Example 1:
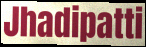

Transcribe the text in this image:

Jhadipatti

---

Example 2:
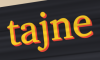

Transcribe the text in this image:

tajne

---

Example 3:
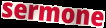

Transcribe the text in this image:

sermone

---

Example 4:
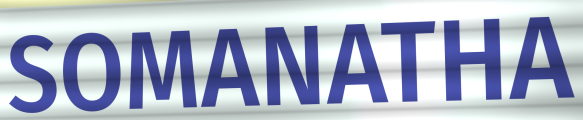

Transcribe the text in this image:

SOMANATHA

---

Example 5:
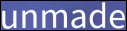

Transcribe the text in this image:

unmade